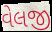
વેલજી